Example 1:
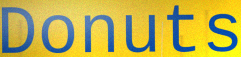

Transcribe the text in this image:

Donuts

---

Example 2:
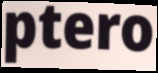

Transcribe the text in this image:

ptero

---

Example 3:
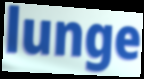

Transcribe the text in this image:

lunge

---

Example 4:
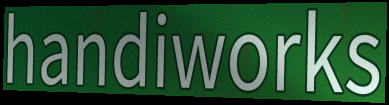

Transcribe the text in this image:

handiworks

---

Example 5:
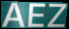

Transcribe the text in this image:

AEZ